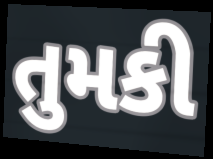
તુમકી